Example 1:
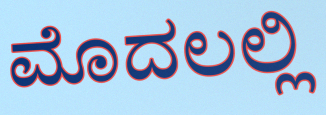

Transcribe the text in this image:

ಮೊದಲಲ್ಲಿ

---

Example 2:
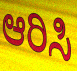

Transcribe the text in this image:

ಆರಿಸಿ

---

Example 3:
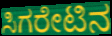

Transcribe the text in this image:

ಸಿಗರೇಟಿನ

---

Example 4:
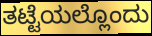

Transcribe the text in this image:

ತಟ್ಟೆಯಲ್ಲೊಂದು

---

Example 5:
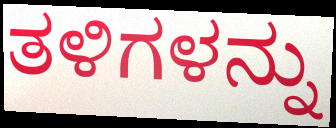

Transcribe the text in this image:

ತಳಿಗಳನ್ನು